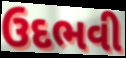
ઉદભવી